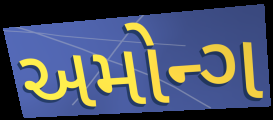
અમોન્ગ